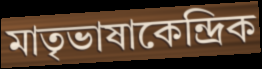
মাতৃভাষাকেন্দ্রিক